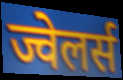
ज्वेलर्स